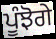
ਪੂੰਝੋਗੇ